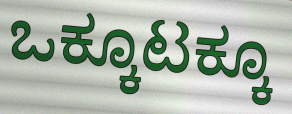
ಒಕ್ಕೂಟಕ್ಕೂ